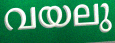
വയലു